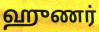
ஹுணர்